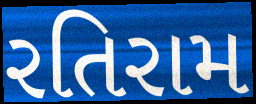
રતિરામ